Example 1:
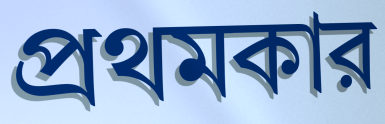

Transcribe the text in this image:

প্রথমকার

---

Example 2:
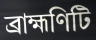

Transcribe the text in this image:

ব্রাহ্মণিটি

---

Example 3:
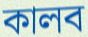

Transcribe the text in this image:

কালব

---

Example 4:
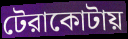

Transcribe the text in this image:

টেরাকোটায়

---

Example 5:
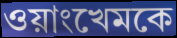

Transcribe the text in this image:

ওয়াংখেমকে